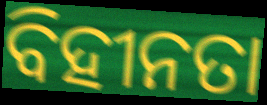
ବିହୀନତା